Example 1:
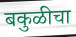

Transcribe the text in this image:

बकुळीचा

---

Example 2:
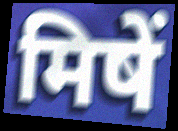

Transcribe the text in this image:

मिषें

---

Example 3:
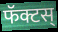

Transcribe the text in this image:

फॅक्टस्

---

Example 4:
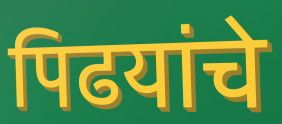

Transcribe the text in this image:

पिढयांचे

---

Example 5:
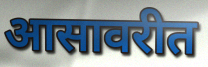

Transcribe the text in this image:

आसावरीत